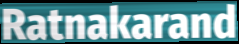
Ratnakarand